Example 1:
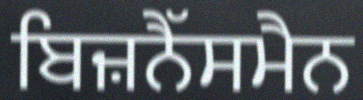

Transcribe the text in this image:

ਬਿਜ਼ਨੈੱਸਮੈਨ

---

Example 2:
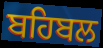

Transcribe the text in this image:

ਬਹਿਬਲ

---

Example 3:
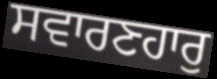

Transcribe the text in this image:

ਸਵਾਰਣਹਾਰੁ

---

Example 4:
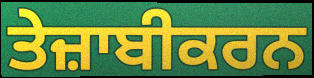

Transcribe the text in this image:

ਤੇਜ਼ਾਬੀਕਰਨ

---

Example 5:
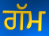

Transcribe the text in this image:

ਗੱਮ